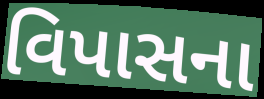
વિપાસના